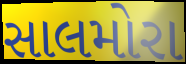
સાલમોરા